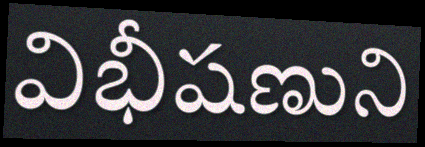
విభీషణుని